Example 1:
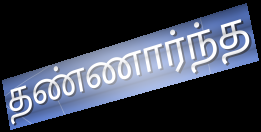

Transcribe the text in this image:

தண்ணார்ந்த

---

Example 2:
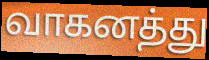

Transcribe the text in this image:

வாகனத்து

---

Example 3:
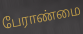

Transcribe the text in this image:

பேராண்மை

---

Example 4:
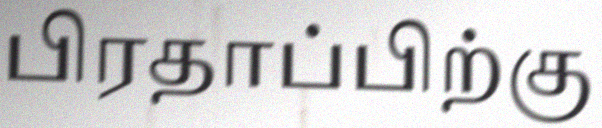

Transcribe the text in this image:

பிரதாப்பிற்கு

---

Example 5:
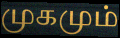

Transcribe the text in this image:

முகமும்